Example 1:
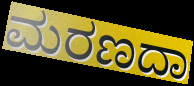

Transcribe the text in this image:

ಮರಣದಾ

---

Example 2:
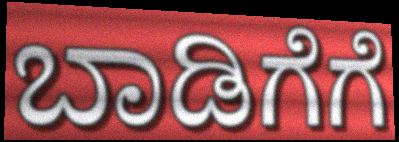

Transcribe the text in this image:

ಬಾಡಿಗೆಗೆ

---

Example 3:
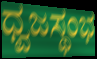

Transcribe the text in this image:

ಧ್ವಜಸ್ಥಂಭ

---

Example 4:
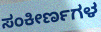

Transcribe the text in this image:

ಸಂಕೀರ್ಣಗಳ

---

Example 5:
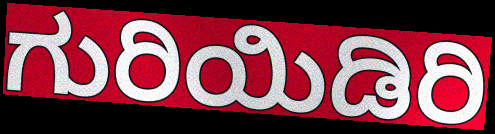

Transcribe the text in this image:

ಗುರಿಯಿಡಿರಿ